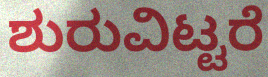
ಶುರುವಿಟ್ಟರೆ